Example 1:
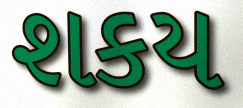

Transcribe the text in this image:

શકય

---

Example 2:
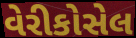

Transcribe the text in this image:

વેરીકોસેલ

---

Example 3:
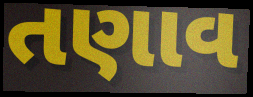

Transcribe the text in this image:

તણાવ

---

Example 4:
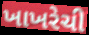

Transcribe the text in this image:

ખાખરેચી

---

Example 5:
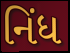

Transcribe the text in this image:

નિંધ